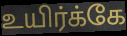
உயிர்க்கே